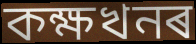
কক্ষখনৰ